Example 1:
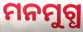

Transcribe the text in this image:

ମନମୁଗ୍ଧ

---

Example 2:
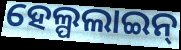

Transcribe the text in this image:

ହେଲ୍ପଲାଇନ୍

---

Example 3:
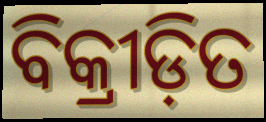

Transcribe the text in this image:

ବିକ୍ରୀଡ଼ିତ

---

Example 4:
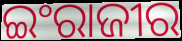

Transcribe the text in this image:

ଇଂରାଜୀର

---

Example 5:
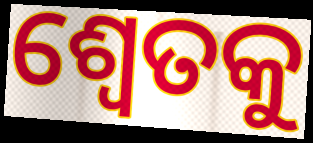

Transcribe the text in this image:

ଶ୍ଵେତକୁ